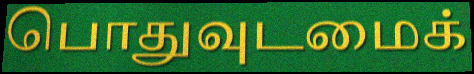
பொதுவுடமைக்